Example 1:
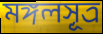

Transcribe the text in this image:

মঙ্গলসূত্র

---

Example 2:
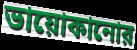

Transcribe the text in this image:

ভায়োকানোর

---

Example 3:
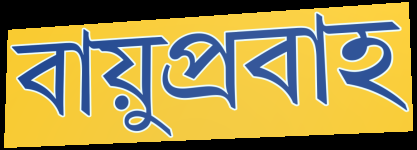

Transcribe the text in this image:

বায়ুপ্রবাহ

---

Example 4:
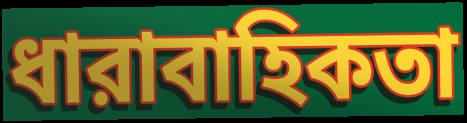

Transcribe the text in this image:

ধারাবাহিকতা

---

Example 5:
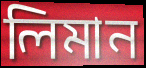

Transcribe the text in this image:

লিমান